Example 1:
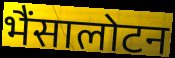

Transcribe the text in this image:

भैंसालोटन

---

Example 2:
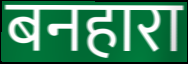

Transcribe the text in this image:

बनहारा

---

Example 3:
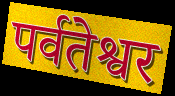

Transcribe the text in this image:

पर्वतेश्वर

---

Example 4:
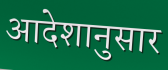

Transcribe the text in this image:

आदेशानुसार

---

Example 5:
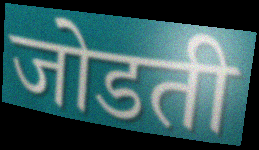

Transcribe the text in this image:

जोडती